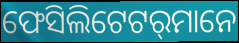
ଫେସିଲିଟେଟର୍‌ମାନେ